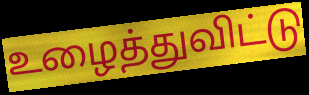
உழைத்துவிட்டு